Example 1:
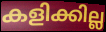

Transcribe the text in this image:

കളിക്കില്ല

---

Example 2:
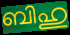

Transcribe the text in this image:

ബിഹു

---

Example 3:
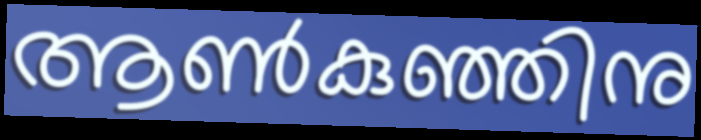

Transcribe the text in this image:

ആൺകുഞ്ഞിനു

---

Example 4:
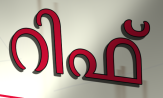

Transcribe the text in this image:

റിഫ്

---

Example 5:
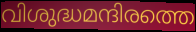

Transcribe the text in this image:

വിശുദ്ധമന്ദിരത്തെ